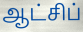
ஆட்சிப்